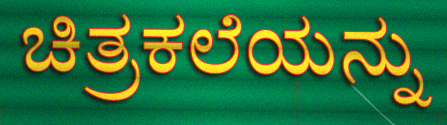
ಚಿತ್ರಕಲೆಯನ್ನು